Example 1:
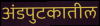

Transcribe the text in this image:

अंडपुटकातील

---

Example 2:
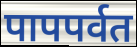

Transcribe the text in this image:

पापपर्वत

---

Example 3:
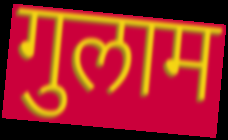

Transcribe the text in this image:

गुलाम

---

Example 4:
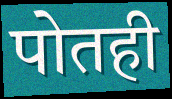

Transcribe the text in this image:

पोतही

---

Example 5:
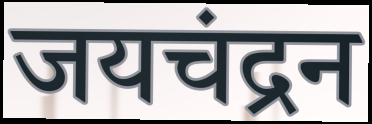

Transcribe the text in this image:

जयचंद्रन